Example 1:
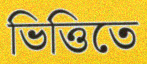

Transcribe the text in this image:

ভিত্তিতে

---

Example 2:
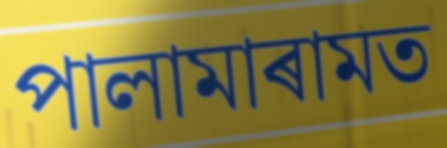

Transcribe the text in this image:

পালামাৰামত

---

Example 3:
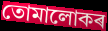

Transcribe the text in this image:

তোমালোকৰ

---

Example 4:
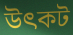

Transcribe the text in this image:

উৎকট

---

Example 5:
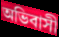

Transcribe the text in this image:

অভিবাসী